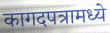
कागदपत्रामध्ये